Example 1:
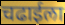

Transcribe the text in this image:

चढाईला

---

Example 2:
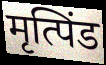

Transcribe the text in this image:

मृत्पिंड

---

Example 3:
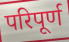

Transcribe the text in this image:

परिपूर्ण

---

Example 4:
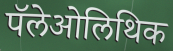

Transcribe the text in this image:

पॅलेओलिथिक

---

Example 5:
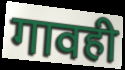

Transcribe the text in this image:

गावही